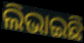
ଲିଭାଇଛି